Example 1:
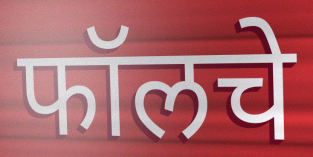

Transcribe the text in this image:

फॉलचे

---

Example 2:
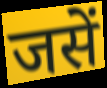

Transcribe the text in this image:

जसें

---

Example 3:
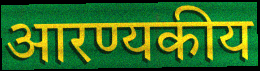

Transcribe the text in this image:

आरण्यकीय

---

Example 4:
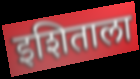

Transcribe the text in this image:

इशिताला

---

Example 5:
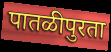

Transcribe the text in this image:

पातळीपुरता